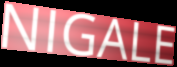
NIGALE